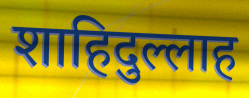
शाहिदुल्लाह